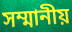
সম্মানীয়